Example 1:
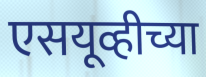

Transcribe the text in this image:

एसयूव्हीच्या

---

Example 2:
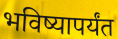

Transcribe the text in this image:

भविष्यापर्यंत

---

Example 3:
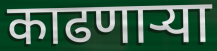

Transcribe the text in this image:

काढणार्‍या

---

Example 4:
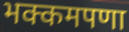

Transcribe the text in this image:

भक्कमपणा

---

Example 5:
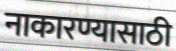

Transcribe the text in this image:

नाकारण्यासाठी